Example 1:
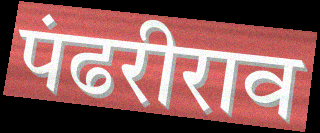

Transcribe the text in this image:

पंढरीराव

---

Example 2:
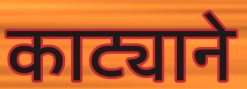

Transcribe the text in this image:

काट्याने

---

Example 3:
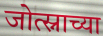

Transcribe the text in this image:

जोत्स्नाच्या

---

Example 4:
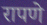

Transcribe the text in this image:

रापणे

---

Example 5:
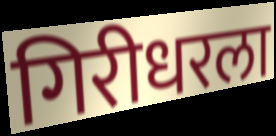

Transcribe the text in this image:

गिरीधरला